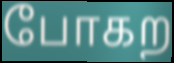
போகற